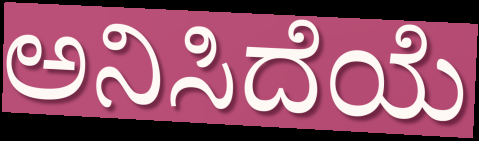
ಅನಿಸಿದೆಯೆ